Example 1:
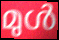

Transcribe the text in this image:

മുൾ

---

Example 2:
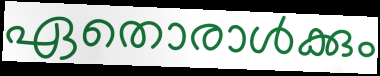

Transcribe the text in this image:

ഏതൊരാൾക്കും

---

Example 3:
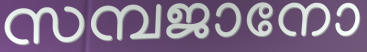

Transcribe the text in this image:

സമ്പജാനോ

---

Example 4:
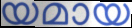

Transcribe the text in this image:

യമായ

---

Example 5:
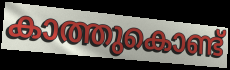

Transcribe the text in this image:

കാത്തുകൊണ്ട്